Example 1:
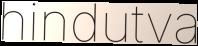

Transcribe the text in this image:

hindutva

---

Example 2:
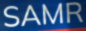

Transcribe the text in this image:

SAMR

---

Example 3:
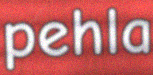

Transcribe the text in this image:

pehla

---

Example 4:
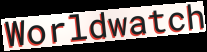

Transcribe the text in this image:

Worldwatch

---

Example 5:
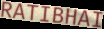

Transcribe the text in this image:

RATIBHAI